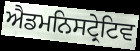
ਐਡਮਨਿਸਟ੍ਰੇਟਿਵ